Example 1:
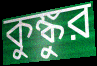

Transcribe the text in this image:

কুঙ্কুর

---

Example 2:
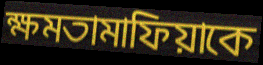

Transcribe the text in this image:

ক্ষমতামাফিয়াকে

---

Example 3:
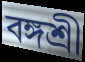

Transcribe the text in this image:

বঙ্গশ্রী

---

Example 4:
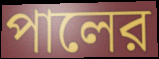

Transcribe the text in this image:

পালের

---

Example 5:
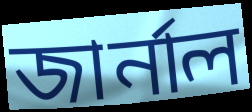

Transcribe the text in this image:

জার্নাল